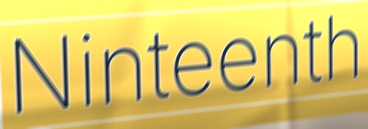
Ninteenth